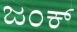
ಜಂಕ್